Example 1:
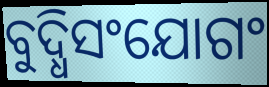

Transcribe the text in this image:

ବୁଦ୍ଧିସଂଯୋଗଂ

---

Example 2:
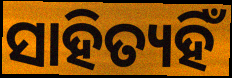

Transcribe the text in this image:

ସାହିତ୍ୟହିଁ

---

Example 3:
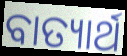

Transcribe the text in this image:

ବାତ୍ୟାର୍ଥ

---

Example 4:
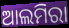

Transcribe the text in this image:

ଆଲମିରା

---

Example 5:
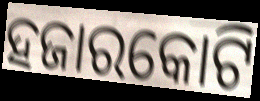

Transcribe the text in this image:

ହଜାରକୋଟି